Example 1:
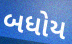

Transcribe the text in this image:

બધોય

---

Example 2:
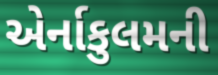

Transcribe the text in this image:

એર્નાકુલમની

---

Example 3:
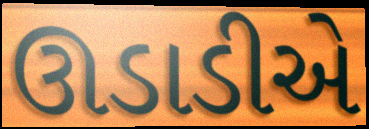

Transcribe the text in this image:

ઊડાડીએ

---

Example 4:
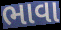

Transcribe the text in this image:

ભાવા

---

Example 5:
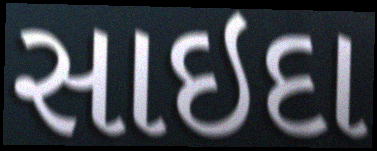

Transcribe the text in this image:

સાઇદા